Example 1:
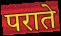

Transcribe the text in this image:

पराते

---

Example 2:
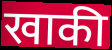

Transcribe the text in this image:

खाकी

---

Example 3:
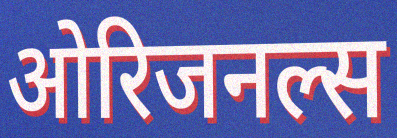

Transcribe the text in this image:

ओरिजनल्स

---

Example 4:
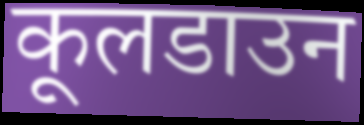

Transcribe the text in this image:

कूलडाउन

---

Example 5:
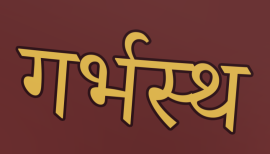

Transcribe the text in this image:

गर्भस्थ